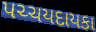
પચ્ચયદાયકા